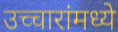
उच्चारांमध्ये